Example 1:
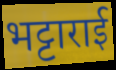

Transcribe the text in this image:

भट्टाराई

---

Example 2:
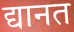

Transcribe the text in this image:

द्यानत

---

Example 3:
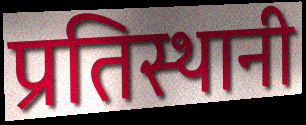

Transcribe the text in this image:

प्रतिस्थानी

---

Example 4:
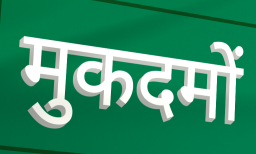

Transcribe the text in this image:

मुकदमों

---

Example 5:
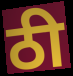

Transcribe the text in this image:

ठी